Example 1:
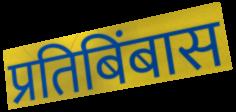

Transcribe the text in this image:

प्रतिबिंबास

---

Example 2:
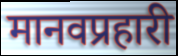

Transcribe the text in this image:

मानवप्रहारी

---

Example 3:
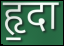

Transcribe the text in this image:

हृ॒दा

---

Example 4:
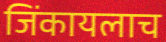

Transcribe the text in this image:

जिंकायलाच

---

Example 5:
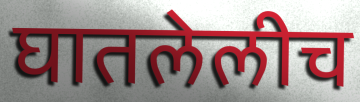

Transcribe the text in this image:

घातलेलीच